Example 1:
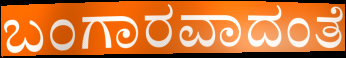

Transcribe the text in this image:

ಬಂಗಾರವಾದಂತೆ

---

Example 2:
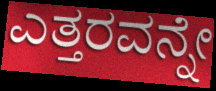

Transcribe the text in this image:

ಎತ್ತರವನ್ನೇ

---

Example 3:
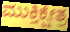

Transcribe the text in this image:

ಮುಕ್ತಿಕ್ಷೇತ್ರ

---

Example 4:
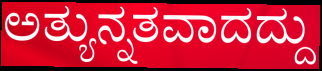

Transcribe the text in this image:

ಅತ್ಯುನ್ನತವಾದದ್ದು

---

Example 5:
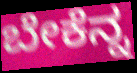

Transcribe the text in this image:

ಬೇಕೆನ್ನ